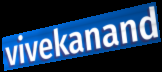
vivekanand